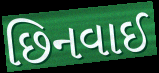
છિનવાઈ